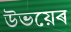
উভয়েৰ